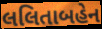
લલિતાબહેન